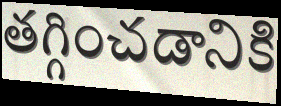
తగ్గించడానికి